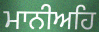
ਮਾਨੀਅਹਿ